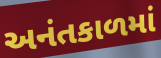
અનંતકાળમાં